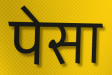
पेसा